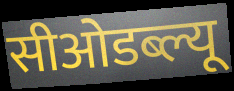
सीओडब्ल्यू